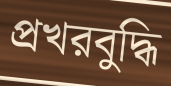
প্রখরবুদ্ধি